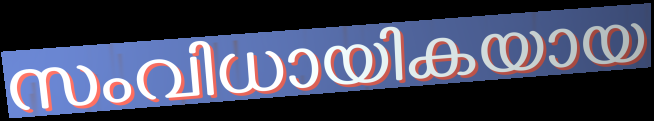
സംവിധായികയായ